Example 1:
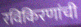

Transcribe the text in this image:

रविकिरणांची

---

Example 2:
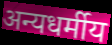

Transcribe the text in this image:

अन्यधर्मीय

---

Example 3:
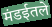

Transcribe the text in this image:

मंडईतले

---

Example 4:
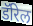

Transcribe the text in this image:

डॅरिल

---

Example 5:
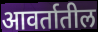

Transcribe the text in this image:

आवर्तातील